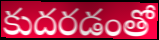
కుదరడంతో